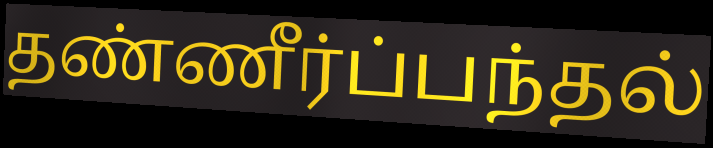
தண்ணீர்ப்பந்தல்